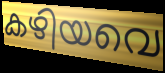
കഴിയവെ